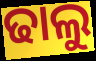
ଢାଲୁ